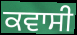
ਕਵਾਸੀ